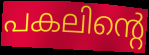
പകലിന്റെ